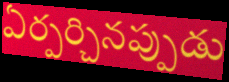
ఏర్పర్చినప్పుడు